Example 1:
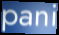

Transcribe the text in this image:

pani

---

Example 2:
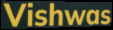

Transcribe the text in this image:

Vishwas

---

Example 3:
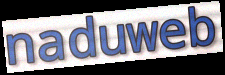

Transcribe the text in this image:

naduweb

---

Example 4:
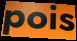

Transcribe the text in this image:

pois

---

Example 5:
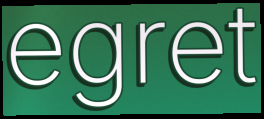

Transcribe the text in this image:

egret